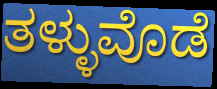
ತಳ್ಳುವೊಡೆ